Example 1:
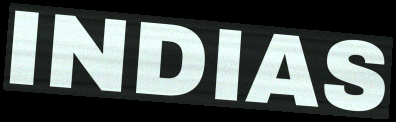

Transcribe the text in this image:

INDIAS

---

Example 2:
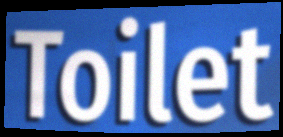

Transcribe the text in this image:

Toilet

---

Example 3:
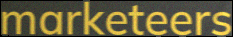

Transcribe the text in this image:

marketeers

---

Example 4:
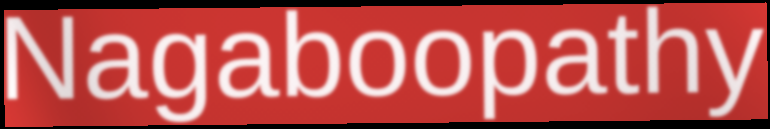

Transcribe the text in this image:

Nagaboopathy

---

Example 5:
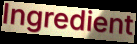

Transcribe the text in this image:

Ingredient